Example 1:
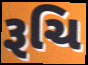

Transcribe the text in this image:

રૂચિ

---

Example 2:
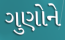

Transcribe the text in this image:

ગુણોને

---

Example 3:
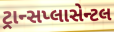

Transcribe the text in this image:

ટ્રાન્સપ્લાસેન્ટલ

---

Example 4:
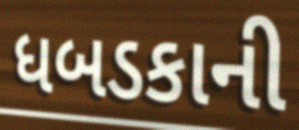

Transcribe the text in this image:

ધબડકાની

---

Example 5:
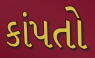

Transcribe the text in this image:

કાંપતો